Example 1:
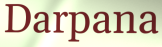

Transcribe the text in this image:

Darpana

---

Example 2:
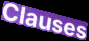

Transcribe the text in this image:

Clauses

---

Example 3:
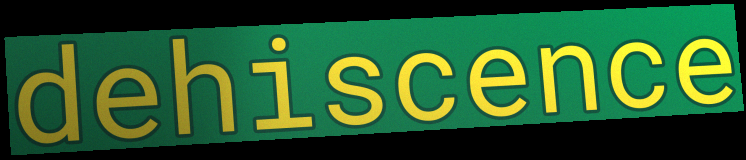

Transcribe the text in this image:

dehiscence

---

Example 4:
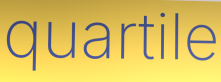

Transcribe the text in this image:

quartile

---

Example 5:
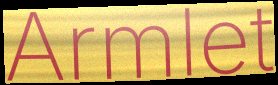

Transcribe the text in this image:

Armlet